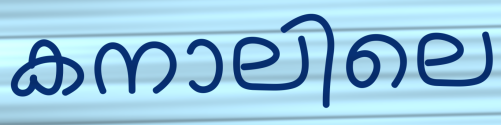
കനാലിലെ